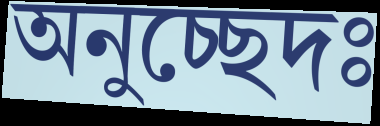
অনুচ্ছেদঃ